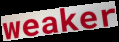
weaker